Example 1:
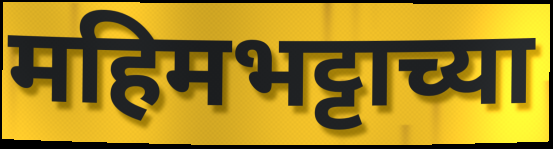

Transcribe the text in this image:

महिमभट्टाच्या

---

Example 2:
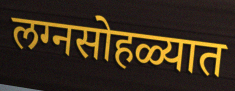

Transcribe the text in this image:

लग्नसोहळ्यात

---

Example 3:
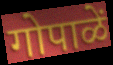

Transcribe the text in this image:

गोपाळें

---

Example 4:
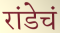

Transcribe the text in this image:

रांडेचं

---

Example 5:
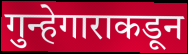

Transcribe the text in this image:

गुन्हेगाराकडून